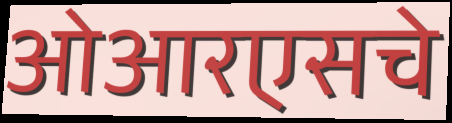
ओआरएसचे